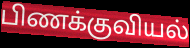
பிணக்குவியல்